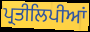
ਪ੍ਰਤੀਲਿਪੀਆਂ